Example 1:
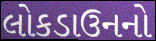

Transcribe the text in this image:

લોકડાઉનનો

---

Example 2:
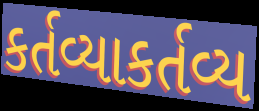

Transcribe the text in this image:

કર્તવ્યાકર્તવ્ય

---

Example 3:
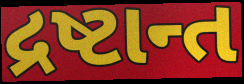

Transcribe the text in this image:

દ્રષ્ટાન્ત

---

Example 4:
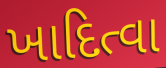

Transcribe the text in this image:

ખાદિત્વા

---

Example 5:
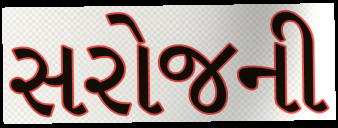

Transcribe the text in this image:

સરોજની